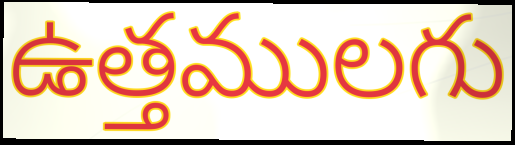
ఉత్తములగు